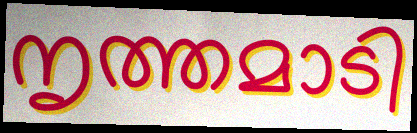
നൃത്തമാടി